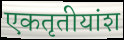
एकतृतीयांश